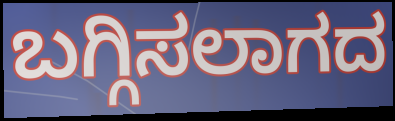
ಬಗ್ಗಿಸಲಾಗದ